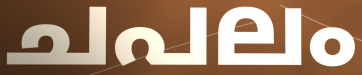
ചപലം